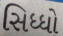
સિધ્ધો